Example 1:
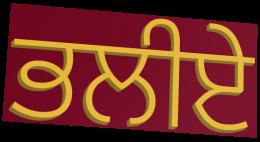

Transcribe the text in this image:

ਭਲੀਏ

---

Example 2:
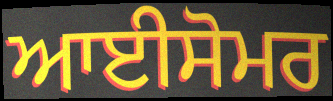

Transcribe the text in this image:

ਆਈਸੋਮਰ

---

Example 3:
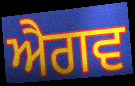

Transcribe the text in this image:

ਐਗਵ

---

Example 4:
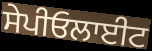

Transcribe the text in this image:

ਸੇਪੀਓਲਾਈਟ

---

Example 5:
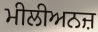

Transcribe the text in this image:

ਮੀਲੀਅਨਜ਼